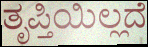
ತೃಪ್ತಿಯಿಲ್ಲದೆ